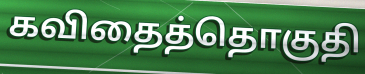
கவிதைத்தொகுதி